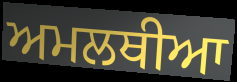
ਅਮਲਥੀਆ